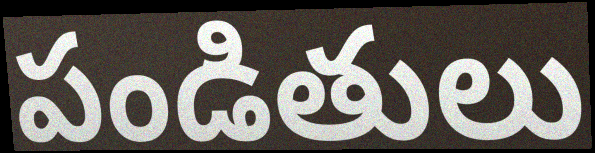
పండితులు